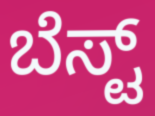
ಬೆಸ್ಟ್